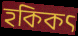
হকিকৎ